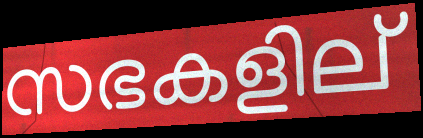
സഭകളില്